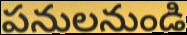
పనులనుండి